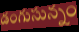
డంగుసున్నం